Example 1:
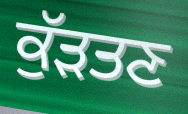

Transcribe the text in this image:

ਕੁੱੜਤਣ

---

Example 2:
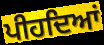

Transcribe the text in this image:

ਪੀਹਦਿਆਂ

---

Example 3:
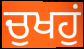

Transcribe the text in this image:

ਚੁਖਹੁਂ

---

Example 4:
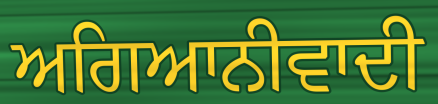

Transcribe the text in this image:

ਅਗਿਆਨੀਵਾਦੀ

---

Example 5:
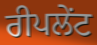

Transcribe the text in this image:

ਰੀਪਲੇਂਟ